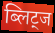
ब्लिट्ज